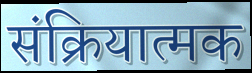
संक्रियात्मक